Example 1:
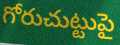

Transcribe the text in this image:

గోరుచుట్టుపై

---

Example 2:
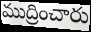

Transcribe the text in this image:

ముద్రించారు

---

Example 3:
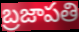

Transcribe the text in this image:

బ్రజాపతి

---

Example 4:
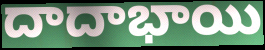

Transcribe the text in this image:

దాదాభాయి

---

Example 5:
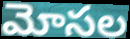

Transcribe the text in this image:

మోసల